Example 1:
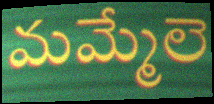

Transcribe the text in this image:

మమ్మేలె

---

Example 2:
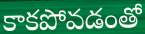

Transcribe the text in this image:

కాకపోవడంతో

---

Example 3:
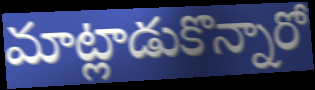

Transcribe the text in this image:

మాట్లాడుకొన్నారో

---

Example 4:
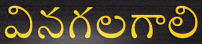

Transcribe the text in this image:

వినగలగాలి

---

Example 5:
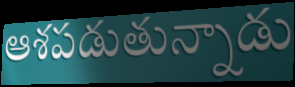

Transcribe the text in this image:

ఆశపడుతున్నాడు